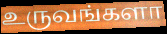
உருவங்களா